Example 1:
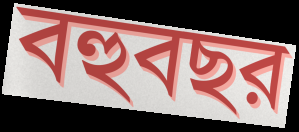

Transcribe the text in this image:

বহুবছর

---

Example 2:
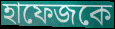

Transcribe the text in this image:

হাফেজকে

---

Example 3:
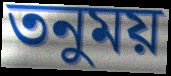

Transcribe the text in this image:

তনুময়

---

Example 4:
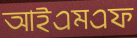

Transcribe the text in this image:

আইএমএফ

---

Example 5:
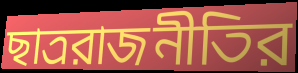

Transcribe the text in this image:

ছাত্ররাজনীতির